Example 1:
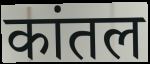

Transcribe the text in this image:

कांतल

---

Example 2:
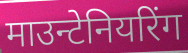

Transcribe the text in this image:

माउन्टेनियरिंग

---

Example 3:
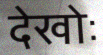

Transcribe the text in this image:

देखोः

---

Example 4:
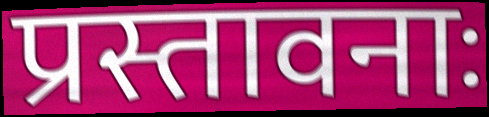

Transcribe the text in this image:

प्रस्तावनाः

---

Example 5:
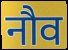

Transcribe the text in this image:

नौव